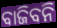
ବାଜିବନି